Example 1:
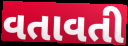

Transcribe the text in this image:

વતાવતી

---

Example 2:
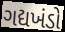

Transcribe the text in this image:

ગદ્યખંડો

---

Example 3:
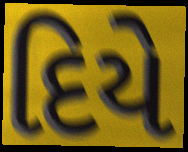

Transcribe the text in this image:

દિયે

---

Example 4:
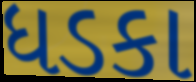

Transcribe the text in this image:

ધડકા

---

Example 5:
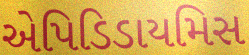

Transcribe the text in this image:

એપિડિડાયમિસ